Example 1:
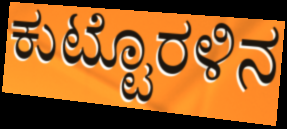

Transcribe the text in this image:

ಕುಟ್ಟೊರಳಿನ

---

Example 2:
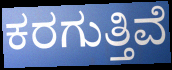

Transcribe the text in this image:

ಕರಗುತ್ತಿವೆ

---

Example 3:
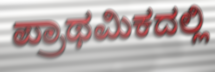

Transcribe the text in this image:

ಪ್ರಾಥಮಿಕದಲ್ಲಿ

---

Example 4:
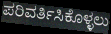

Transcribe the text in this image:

ಪರಿವರ್ತಿಸಿಕೊಳ್ಳಲು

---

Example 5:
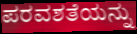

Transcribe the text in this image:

ಪರವಶತೆಯನ್ನು